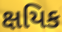
ક્ષયિક